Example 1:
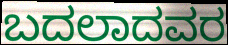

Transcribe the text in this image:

ಬದಲಾದವರ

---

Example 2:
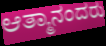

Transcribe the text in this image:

ಆತ್ಮಾನಂದರು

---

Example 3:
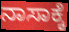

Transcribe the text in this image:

ನಾಸಾಕ್ಕೆ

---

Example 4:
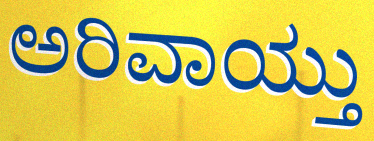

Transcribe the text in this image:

ಅರಿವಾಯ್ತು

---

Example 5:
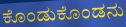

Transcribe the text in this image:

ಕೊಂಡುಕೊಂಡನು